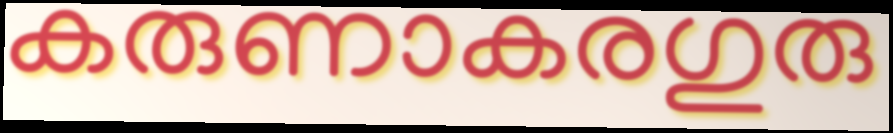
കരുണാകരഗുരു